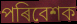
পৰিবেশক